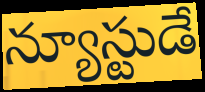
న్యూస్టుడే